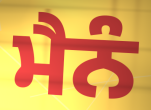
ਮੈਨੰ